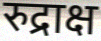
रुद्राक्ष